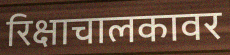
रिक्षाचालकावर